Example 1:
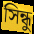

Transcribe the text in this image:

সিন্ধু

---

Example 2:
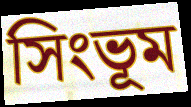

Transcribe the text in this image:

সিংভূম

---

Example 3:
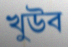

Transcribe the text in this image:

খুউব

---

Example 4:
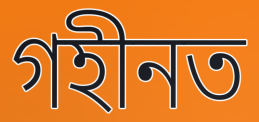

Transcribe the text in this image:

গহীনত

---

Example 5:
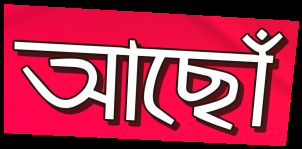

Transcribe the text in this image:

আছোঁ